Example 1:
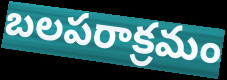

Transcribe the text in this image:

బలపరాక్రమం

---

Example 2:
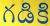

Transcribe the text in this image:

గడికి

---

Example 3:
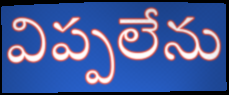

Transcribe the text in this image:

విప్పలేను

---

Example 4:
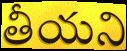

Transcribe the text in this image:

తీయని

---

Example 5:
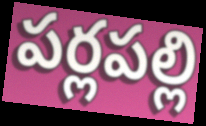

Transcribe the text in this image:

పర్లపల్లి